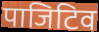
पाजिटिव